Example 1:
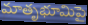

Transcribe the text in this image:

మాతృభూమిపై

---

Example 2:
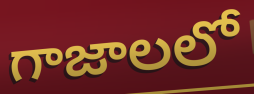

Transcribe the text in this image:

గాజాలలో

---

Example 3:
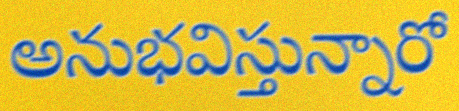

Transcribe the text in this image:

అనుభవిస్తున్నారో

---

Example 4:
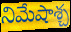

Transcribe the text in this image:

నిమేషాశ్చ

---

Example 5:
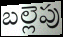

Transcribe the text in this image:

బల్లెపు